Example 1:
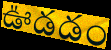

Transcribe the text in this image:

ఊడడం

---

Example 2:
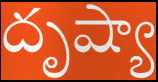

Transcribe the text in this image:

దృష్యా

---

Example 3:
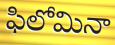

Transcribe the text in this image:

ఫిలోమినా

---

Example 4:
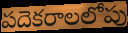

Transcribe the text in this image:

పదెకరాలలోపు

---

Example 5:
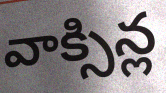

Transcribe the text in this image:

వాక్సిన్ల